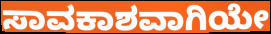
ಸಾವಕಾಶವಾಗಿಯೇ